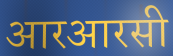
आरआरसी